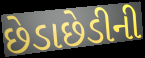
છેડાછેડીની